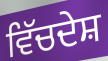
ਵਿੱਚਦੇਸ਼